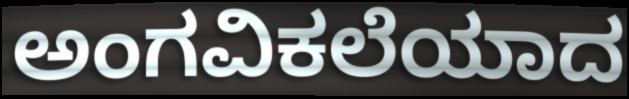
ಅಂಗವಿಕಲೆಯಾದ